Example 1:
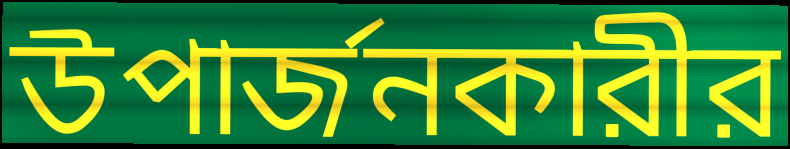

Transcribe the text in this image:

উপার্জনকারীর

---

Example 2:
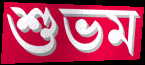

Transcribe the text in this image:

শুভম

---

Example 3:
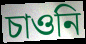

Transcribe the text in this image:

চাওনি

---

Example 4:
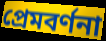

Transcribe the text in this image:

প্রেমবর্ণনা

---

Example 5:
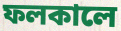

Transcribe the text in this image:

ফলকালে